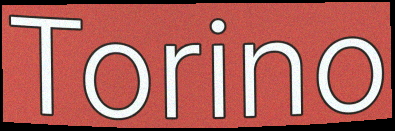
Torino